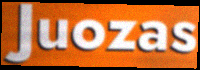
Juozas